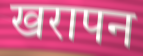
खरापन